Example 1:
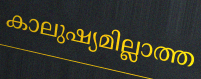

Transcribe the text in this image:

കാലുഷ്യമില്ലാത്ത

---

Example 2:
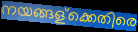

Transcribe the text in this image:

നയങ്ങള്ക്കെതിരെ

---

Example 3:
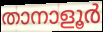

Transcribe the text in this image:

താനാളൂർ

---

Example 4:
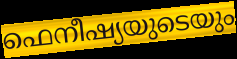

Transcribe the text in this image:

ഫെനീഷ്യയുടെയും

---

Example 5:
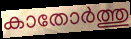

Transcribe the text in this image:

കാതോർത്തു